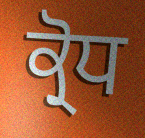
ਕ੍ਰੋਧ